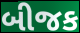
બીજક